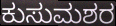
ಕುಸುಮಶರ